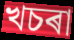
খচৰা